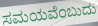
ಸಮಯವೆಂಬುದು